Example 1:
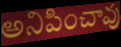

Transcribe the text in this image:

అనిపించావు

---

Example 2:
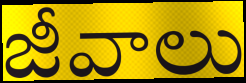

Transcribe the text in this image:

జీవాలు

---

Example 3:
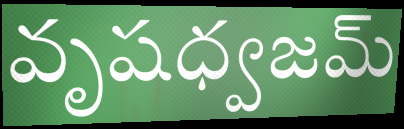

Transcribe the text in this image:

వృషధ్వజమ్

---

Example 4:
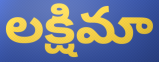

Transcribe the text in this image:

లక్షిమా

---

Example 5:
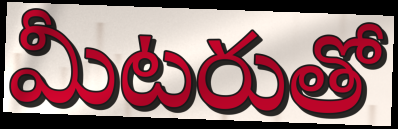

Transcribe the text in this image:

మీటరుతో